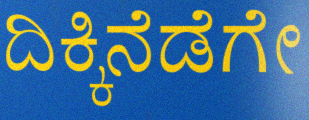
ದಿಕ್ಕಿನೆಡೆಗೇ